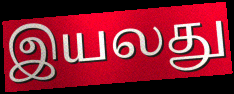
இயலது